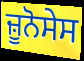
ਜ਼ੂਨੋਸੇਸ